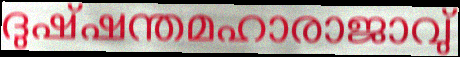
ദുഷ്ഷന്തമഹാരാജാവു്